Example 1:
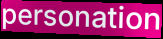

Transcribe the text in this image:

personation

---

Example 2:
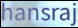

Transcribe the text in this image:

hansraj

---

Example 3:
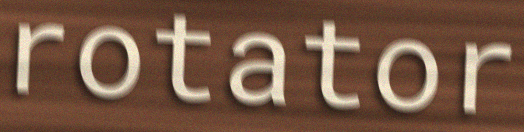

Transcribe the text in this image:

rotator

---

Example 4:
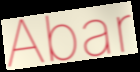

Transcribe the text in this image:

Abar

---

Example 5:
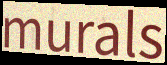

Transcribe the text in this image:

murals